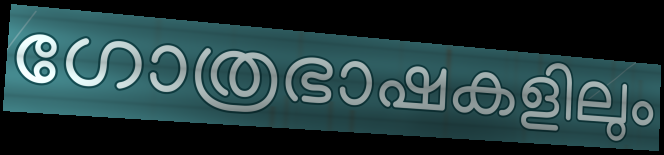
ഗോത്രഭാഷകളിലും